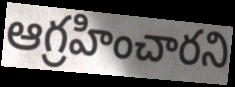
ఆగ్రహించారని